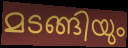
മടങ്ങിയും